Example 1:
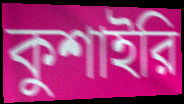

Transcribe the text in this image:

কুশাইরি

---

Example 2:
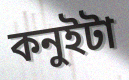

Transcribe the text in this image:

কনুইটা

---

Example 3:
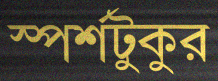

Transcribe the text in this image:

স্পর্শটুকুর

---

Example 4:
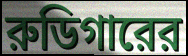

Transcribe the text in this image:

রুডিগারের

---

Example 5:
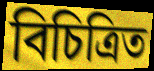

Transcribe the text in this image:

বিচিত্রিত